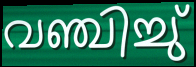
വഞ്ചിച്ചു്